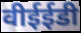
वीईईडी